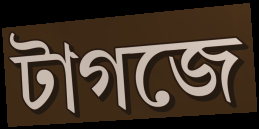
টাগজে